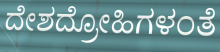
ದೇಶದ್ರೋಹಿಗಳಂತೆ